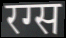
रग्स